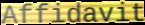
Affidavit